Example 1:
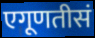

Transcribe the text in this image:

एगूणतीसं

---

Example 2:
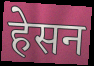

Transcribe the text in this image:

हेसन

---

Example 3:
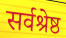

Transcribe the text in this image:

सर्वश्रेष्ठ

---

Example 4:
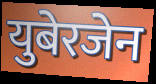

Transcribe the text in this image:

युबेरजेन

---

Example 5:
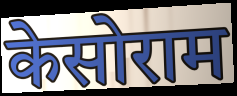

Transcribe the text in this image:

केसोराम